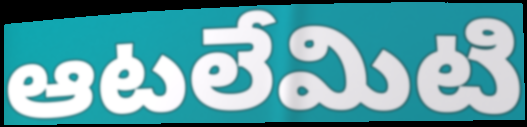
ఆటలేమిటి